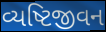
વ્યષ્ટિજીવન